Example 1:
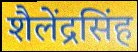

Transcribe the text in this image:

शैलेंद्रसिंह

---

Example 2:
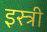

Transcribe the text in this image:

इस्त्री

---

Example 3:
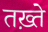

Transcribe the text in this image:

तख़्ते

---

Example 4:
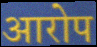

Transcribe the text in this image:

आरोप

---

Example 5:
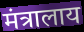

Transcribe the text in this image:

मंत्रालाय